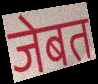
जेबत